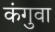
कंगुवा